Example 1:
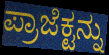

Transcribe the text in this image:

ಪ್ರಾಜೆಕ್ಟನ್ನು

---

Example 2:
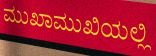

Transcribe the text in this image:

ಮುಖಾಮುಖಿಯಲ್ಲಿ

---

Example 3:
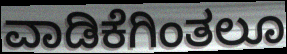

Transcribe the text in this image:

ವಾಡಿಕೆಗಿಂತಲೂ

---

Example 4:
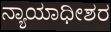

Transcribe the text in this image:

ನ್ಯಾಯಾಧೀಶರ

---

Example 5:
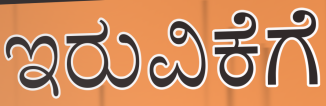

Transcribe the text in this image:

ಇರುವಿಕೆಗೆ